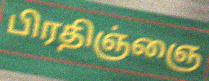
பிரதிஞ்ஞை